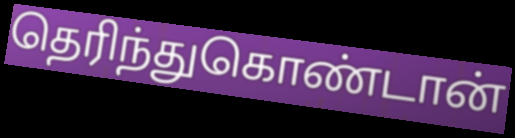
தெரிந்துகொண்டான்